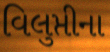
વિલુપ્તીના